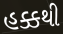
હક્કથી